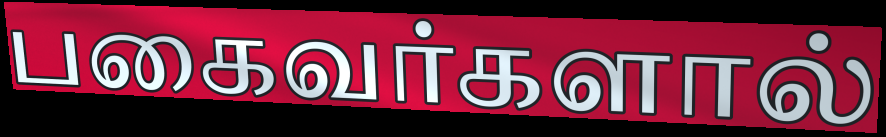
பகைவர்களால்